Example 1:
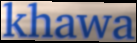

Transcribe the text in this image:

khawa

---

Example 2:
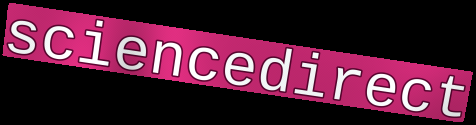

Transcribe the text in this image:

sciencedirect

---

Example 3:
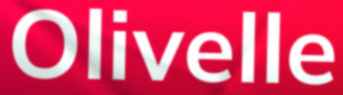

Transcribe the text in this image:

Olivelle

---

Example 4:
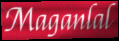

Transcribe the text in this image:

Maganlal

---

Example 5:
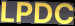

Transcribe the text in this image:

LPDC